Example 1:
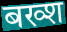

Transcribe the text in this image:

बख्श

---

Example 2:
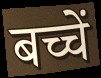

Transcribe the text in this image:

बच्चें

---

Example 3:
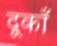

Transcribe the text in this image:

दूकाँ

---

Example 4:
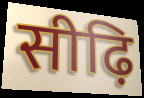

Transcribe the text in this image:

सीढ़ि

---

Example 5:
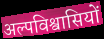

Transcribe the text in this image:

अल्पविश्वासियों